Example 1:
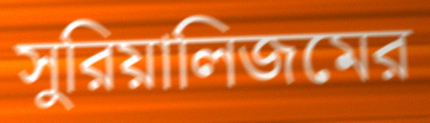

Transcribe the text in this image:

সুরিয়ালিজমের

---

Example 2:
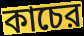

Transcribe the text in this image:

কাচের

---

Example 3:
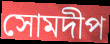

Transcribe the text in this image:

সোমদীপ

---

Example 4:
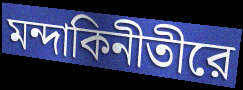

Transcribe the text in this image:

মন্দাকিনীতীরে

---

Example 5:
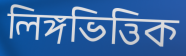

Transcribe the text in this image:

লিঙ্গভিত্তিক